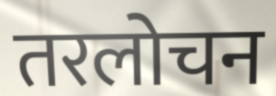
तरलोचन